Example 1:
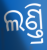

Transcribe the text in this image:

ଲଣ୍ତ୍ରି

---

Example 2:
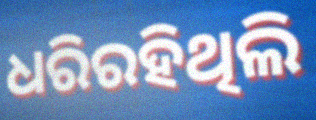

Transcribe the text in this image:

ଧରିରହିଥିଲି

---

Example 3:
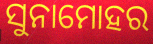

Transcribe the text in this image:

ସୁନାମୋହର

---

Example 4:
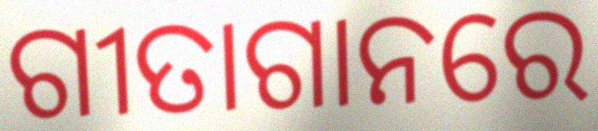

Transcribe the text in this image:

ଗୀତାଗାନରେ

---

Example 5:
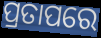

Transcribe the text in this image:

ପ୍ରତାପରେ